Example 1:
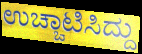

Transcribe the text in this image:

ಉಚ್ಚಾಟಿಸಿದ್ದು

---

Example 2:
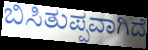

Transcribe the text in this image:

ಬಿಸಿತುಪ್ಪವಾಗಿದೆ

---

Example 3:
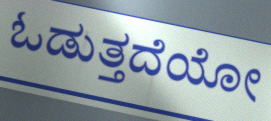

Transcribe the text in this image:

ಓಡುತ್ತದೆಯೋ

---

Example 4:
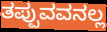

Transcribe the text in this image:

ತಪ್ಪುವವನಲ್ಲ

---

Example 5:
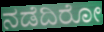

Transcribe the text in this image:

ನಡೆದಿರೋ